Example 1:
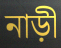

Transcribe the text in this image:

নাড়ী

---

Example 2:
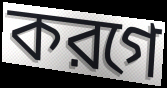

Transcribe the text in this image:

করগে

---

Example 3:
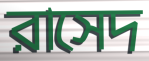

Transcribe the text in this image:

রাসেদ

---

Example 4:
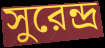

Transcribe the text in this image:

সুরেন্দ্র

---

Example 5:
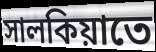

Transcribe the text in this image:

সালকিয়াতে